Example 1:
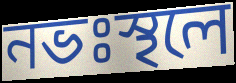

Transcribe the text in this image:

নভঃস্থলে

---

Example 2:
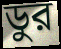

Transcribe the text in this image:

ডুর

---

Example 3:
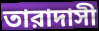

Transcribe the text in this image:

তারাদাসী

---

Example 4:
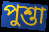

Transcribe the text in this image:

পুশ্তা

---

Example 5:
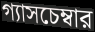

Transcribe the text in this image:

গ্যাসচেম্বার